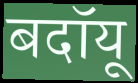
बदॉयू